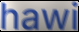
hawi